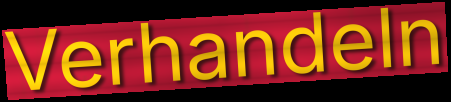
Verhandeln